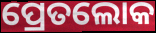
ପ୍ରେତଲୋକ